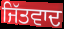
ਜਿੱਤਵਾਦ